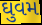
ઘુવમ